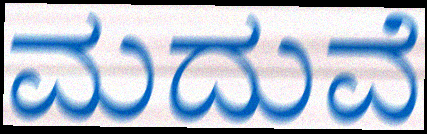
ಮದುವೆ